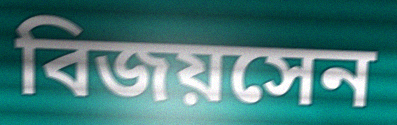
বিজয়সেন